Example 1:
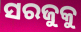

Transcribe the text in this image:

ସରଜୁକୁ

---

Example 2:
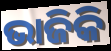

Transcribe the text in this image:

ଭାଜିକି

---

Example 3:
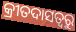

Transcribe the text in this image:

କ୍ରୀତଦାସତ୍ୱରୁ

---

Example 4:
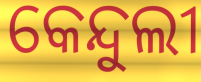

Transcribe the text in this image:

କେନ୍ଦୁଲୀ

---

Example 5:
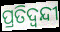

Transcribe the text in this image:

ପ୍ରତିଦ୍ଵନ୍ଦୀ